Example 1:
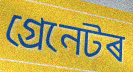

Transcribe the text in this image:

গ্ৰেনেটৰ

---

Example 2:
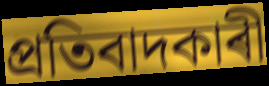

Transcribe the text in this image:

প্ৰতিবাদকাৰী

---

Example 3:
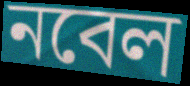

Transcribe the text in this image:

নবেল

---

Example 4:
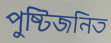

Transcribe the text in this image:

পুষ্টিজনিত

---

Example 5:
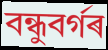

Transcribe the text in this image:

বন্ধুবৰ্গৰ